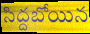
సిద్దబోయిన